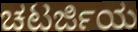
ಚಟರ್ಜಿಯ